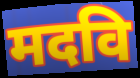
मदवि